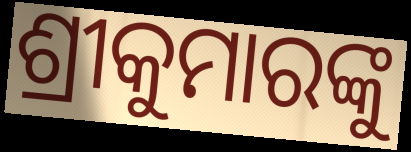
ଶ୍ରୀକୁମାରଙ୍କୁ